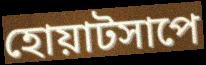
হোয়াটসাপে